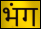
भंग